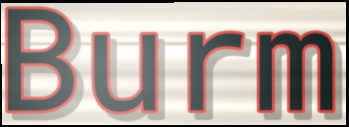
Burm